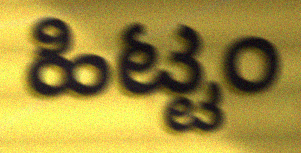
ಹಿಟ್ಟಂ